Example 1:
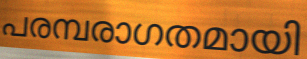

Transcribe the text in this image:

പരമ്പരാഗതമായി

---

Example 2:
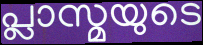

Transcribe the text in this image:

പ്ലാസ്മയുടെ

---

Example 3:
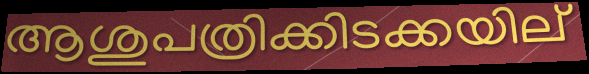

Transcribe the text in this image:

ആശുപത്രിക്കിടക്കയില്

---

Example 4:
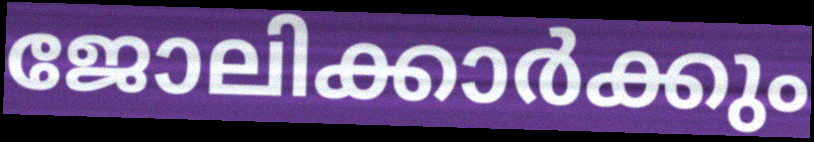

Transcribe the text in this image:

ജോലിക്കാർക്കും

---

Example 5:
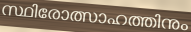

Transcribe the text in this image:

സ്ഥിരോത്സാഹത്തിനും